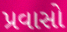
પ્રવાસો